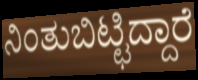
ನಿಂತುಬಿಟ್ಟಿದ್ದಾರೆ